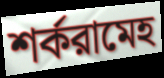
শর্করামেহ